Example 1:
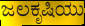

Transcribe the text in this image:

ಜಲಕೃಷಿಯು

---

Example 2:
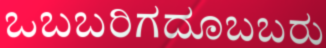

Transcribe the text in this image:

ಒಬಬರಿಗದೂಬಬರು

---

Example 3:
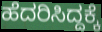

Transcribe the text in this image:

ಹೆದರಿಸಿದ್ದಕ್ಕೆ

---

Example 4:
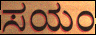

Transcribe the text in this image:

ಸಯಂ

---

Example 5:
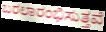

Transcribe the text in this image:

ಬರಲಾರಂಭಿಸುತ್ತವೆ